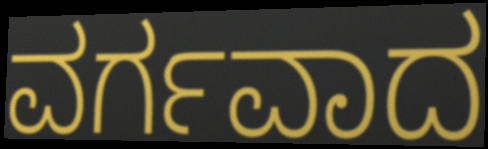
ವರ್ಗವಾದ